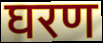
घरण